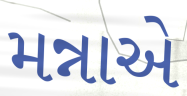
મન્નાએ